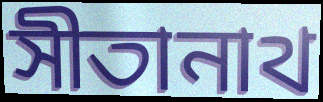
সীতানাথ